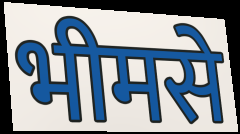
भीमसे